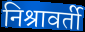
निश्रावर्ती